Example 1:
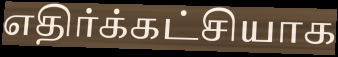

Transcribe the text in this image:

எதிர்க்கட்சியாக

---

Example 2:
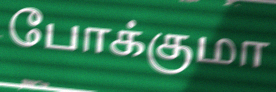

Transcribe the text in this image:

போக்குமா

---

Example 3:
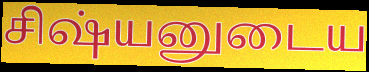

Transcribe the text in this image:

சிஷ்யனுடைய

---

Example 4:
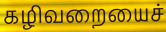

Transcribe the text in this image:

கழிவறையைச்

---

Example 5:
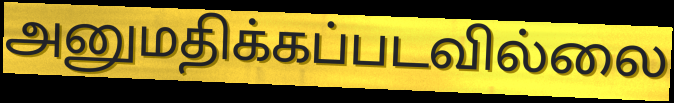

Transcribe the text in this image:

அனுமதிக்கப்படவில்லை